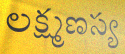
లక్ష్మణస్య